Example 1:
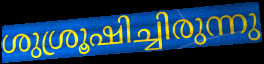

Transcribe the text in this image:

ശുശ്രൂഷിച്ചിരുന്നു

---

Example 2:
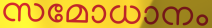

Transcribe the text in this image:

സമോധാനം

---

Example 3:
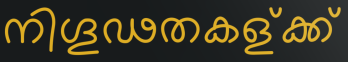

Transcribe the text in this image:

നിഗൂഢതകള്ക്ക്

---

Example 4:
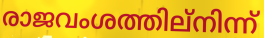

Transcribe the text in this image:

രാജവംശത്തില്നിന്ന്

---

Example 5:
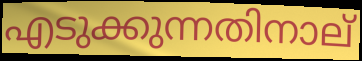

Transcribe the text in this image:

എടുക്കുന്നതിനാല്